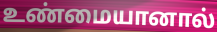
உண்மையானால்